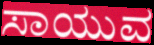
ಸಾಯುವ